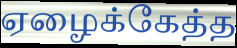
ஏழைக்கேத்த